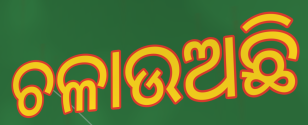
ଚଳାଉଅଛି